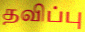
தவிப்பு